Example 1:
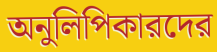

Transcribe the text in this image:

অনুলিপিকারদের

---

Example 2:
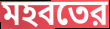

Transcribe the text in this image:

মহবতের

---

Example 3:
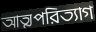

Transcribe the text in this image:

আত্মপরিত্যাগ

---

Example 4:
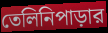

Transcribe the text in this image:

তেলিনিপাড়ার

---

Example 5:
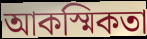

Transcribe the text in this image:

আকস্মিকতা